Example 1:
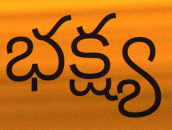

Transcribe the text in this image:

భక్ష్య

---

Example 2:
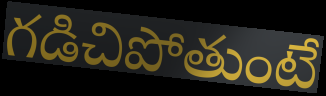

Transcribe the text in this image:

గడిచిపోతుంటే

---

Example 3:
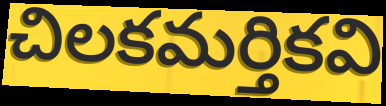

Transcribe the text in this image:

చిలకమర్తికవి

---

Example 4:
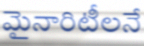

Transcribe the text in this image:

మైనారిటీలనే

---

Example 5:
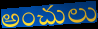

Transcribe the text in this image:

అంచులు